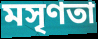
মসৃণতা